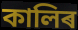
কালিৰ